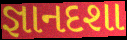
જ્ઞાનદશા